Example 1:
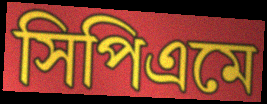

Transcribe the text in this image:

সিপিএমে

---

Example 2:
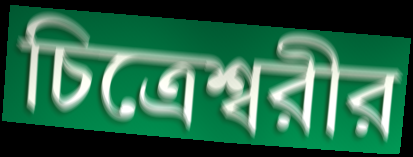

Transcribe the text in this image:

চিত্রেশ্বরীর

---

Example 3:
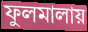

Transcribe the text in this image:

ফুলমালায়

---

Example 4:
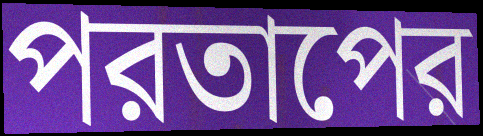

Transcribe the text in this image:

পরতাপের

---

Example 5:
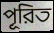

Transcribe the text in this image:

পূরিত